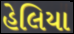
હેલિયા